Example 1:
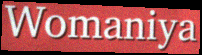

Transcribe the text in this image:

Womaniya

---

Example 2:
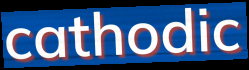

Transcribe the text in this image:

cathodic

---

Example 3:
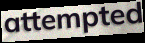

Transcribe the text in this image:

attempted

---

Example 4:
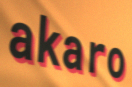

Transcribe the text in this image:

akaro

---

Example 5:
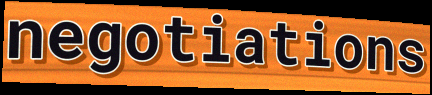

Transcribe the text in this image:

negotiations